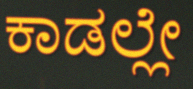
ಕಾಡಲ್ಲೇ